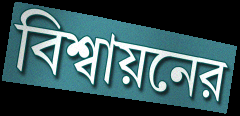
বিশ্বায়নের